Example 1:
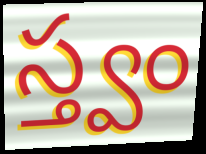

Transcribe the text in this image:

స్త్వం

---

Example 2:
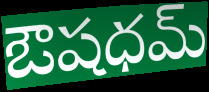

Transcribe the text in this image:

ఔషధమ్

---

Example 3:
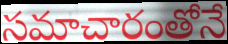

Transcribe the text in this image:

సమాచారంతోనే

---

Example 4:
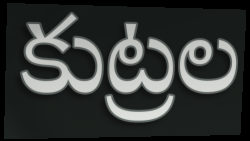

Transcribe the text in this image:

కుట్రల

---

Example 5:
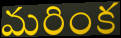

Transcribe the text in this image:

మరింక